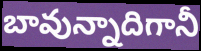
బావున్నాదిగానీ